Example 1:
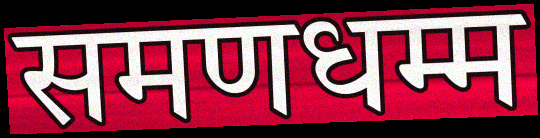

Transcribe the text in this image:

समणधम्म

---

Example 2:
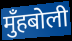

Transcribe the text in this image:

मुँहबोली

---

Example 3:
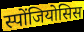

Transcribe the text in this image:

स्पोंजियोसिस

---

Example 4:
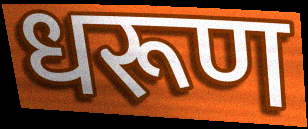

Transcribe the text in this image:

धरूण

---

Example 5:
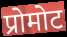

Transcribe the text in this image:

प्रोमोट